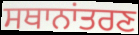
ਸਥਾਨਾਂਤਰਣ